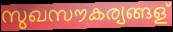
സുഖസൗകര്യങ്ങള്